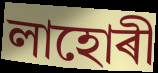
লাহোৰী